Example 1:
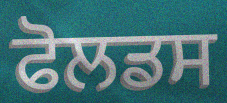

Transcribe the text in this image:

ਫੋਲਡਸ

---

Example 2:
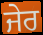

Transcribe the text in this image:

ਜੇਰ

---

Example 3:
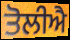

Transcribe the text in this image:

ਤੋਲੀਐ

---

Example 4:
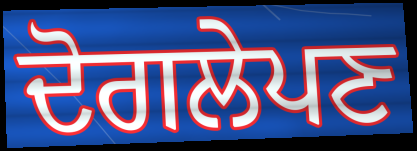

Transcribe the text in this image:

ਦੋਗਲੇਪਣ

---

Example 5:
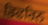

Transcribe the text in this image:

ਡਿਫਰਿਨ